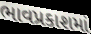
ભાવપ્રકાશમાં